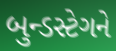
બુન્ડસ્ટેગને